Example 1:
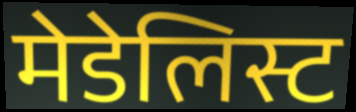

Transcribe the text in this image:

मेडेलिस्ट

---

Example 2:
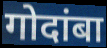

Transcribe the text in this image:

गोदांबा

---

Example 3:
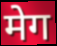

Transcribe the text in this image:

मेग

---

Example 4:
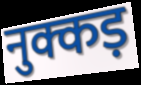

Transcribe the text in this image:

नुक्कड़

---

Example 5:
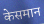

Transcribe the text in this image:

केसमान